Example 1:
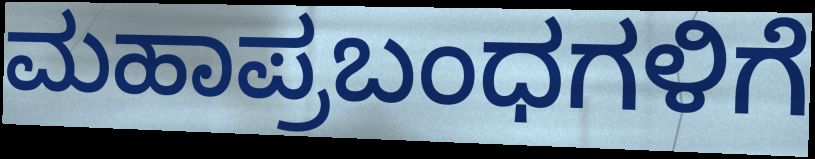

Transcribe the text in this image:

ಮಹಾಪ್ರಬಂಧಗಳಿಗೆ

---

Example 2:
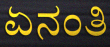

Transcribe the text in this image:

ಏನಂತಿ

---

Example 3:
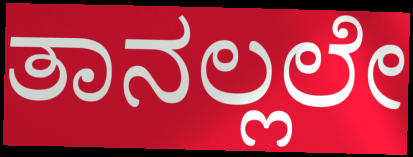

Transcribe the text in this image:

ತಾನಲ್ಲಲೇ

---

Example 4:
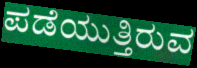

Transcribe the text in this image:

ಪಡೆಯುತ್ತಿರುವ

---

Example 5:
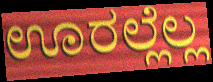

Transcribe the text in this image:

ಊರಲ್ಲೆಲ್ಲ